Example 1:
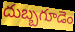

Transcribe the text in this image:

దుబ్బగూడెం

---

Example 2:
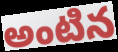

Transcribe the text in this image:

అంటిన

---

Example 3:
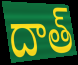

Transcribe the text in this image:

దాత్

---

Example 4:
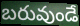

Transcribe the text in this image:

బరువుండే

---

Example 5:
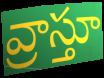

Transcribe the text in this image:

వ్రాస్తూ